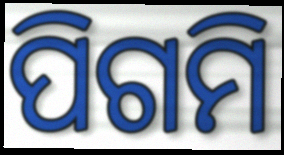
ପିଗମି